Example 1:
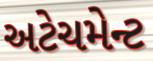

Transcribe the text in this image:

અટેચમેન્ટ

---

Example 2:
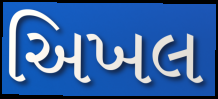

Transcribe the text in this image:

અિખલ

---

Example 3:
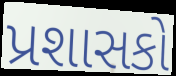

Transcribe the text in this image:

પ્રશાસકો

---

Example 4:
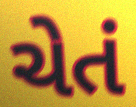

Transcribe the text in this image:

ચેતં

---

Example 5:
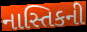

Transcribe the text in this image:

નાસ્તિકની